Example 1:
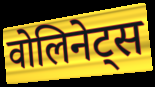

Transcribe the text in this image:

वोलिनेट्स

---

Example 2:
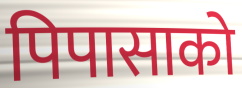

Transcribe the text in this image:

पिपासाको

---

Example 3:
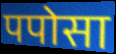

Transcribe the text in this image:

पपोसा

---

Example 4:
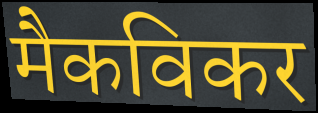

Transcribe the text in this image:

मैकविकर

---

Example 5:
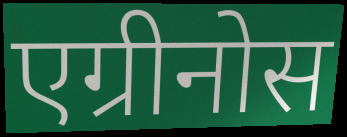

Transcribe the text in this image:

एग्रीनोस